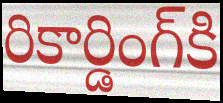
రికార్డింగ్‌కి